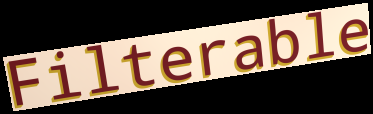
Filterable